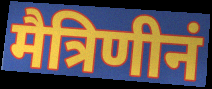
मैत्रिणीनं